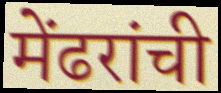
मेंढरांची